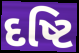
દષ્ટિ